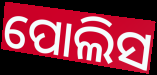
ପୋଲିସ